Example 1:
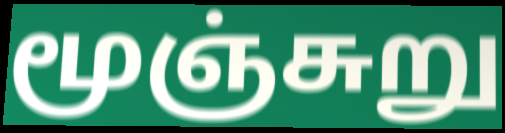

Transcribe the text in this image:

மூஞ்சுறு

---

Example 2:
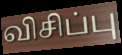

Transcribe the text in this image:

விசிப்பு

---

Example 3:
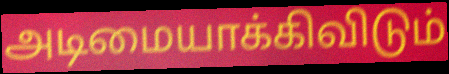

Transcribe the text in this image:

அடிமையாக்கிவிடும்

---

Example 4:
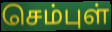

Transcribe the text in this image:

செம்புள்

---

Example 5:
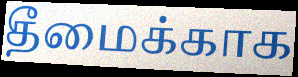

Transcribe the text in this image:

தீமைக்காக